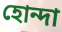
হোন্দা